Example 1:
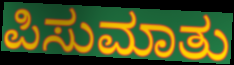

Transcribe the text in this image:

ಪಿಸುಮಾತು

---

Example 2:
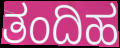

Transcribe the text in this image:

ತಂದಿಹ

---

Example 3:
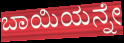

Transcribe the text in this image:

ಬಾಯಿಯನ್ನೇ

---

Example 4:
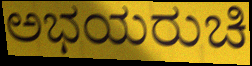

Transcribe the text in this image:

ಅಭಯರುಚಿ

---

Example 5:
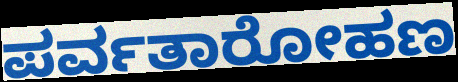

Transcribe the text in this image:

ಪರ್ವತಾರೋಹಣ